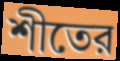
শীতের